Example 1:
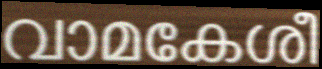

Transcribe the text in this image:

വാമകേശീ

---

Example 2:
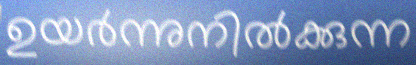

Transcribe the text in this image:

ഉയർന്നുനിൽക്കുന്ന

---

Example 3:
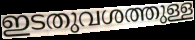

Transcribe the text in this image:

ഇടതുവശത്തുള്ള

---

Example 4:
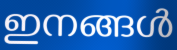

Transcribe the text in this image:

ഇനങ്ങൾ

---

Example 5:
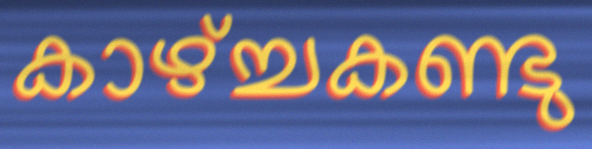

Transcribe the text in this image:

കാഴ്ച്ചകണ്ടു